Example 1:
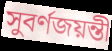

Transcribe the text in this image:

সুবর্ণজয়ন্তী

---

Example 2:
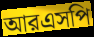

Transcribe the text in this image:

আরএসপি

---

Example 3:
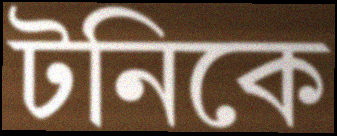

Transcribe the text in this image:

টনিকে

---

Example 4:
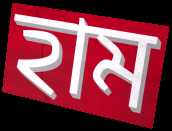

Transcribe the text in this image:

হাম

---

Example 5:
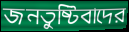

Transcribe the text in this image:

জনতুষ্টিবাদের